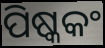
ପିଷ୍କକଂ